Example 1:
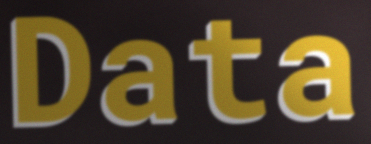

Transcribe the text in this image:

Data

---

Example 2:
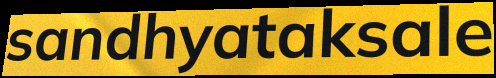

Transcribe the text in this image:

sandhyataksale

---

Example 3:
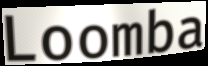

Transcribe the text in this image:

Loomba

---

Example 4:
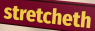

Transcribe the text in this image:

stretcheth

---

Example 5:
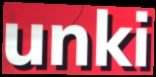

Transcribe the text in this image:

unki